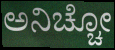
ಅನಿಚ್ಚೋ